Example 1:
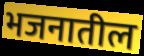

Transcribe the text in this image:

भजनातील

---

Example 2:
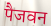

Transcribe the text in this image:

पैजवन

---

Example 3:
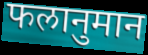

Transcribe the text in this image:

फलानुमान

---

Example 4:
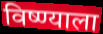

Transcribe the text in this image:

विष्ण्याला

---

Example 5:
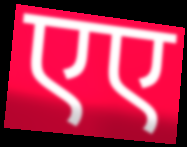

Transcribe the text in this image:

एए